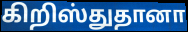
கிறிஸ்துதானா